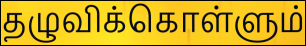
தழுவிக்கொள்ளும்